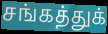
சங்கத்துக்